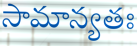
సామాన్యతః